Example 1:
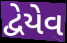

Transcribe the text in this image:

દ્વેયેવ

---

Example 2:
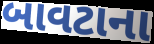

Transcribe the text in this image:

બાવટાના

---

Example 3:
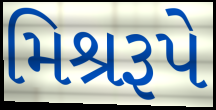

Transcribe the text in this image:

મિશ્રરૂપે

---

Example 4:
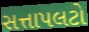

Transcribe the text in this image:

સત્તાપલટો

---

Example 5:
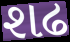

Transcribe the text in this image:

શઢ